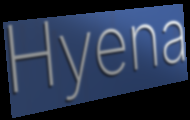
Hyena